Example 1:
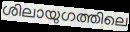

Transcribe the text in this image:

ശിലായുഗത്തിലെ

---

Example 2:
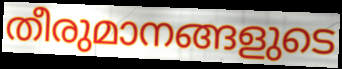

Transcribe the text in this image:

തീരുമാനങ്ങളുടെ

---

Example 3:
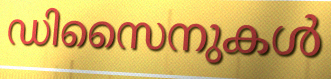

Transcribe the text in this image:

ഡിസൈനുകൾ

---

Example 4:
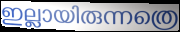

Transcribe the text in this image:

ഇല്ലായിരുന്നത്രെ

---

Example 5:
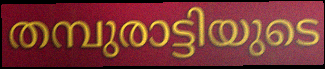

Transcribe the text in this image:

തമ്പുരാട്ടിയുടെ